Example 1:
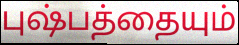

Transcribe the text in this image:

புஷ்பத்தையும்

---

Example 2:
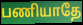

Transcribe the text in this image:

பணியாதே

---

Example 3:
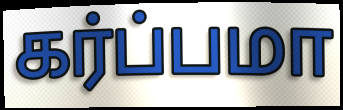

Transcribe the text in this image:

கர்ப்பமா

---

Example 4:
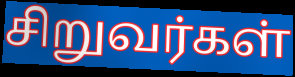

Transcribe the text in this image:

சிறுவர்கள்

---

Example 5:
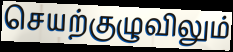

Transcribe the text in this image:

செயற்குழுவிலும்